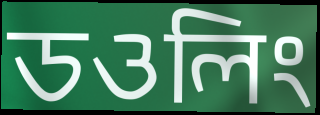
ডওলিং